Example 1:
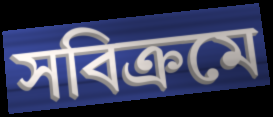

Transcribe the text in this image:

সবিক্রমে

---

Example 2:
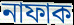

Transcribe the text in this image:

নাফাক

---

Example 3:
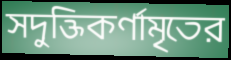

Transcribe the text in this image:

সদুক্তিকর্ণামৃতের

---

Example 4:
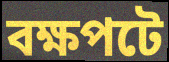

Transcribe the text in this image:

বক্ষপটে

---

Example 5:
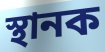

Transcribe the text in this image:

স্থানক